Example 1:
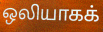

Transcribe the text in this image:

ஒலியாகக்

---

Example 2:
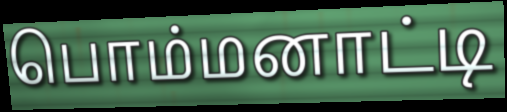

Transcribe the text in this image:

பொம்மனாட்டி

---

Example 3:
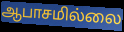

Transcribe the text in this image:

ஆபாசமில்லை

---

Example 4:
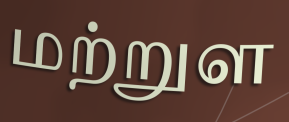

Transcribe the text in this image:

மற்றுள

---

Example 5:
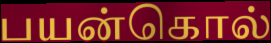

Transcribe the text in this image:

பயன்கொல்